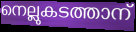
നെല്ലുകടത്താന്